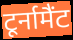
टूर्नामैंट